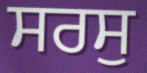
ਸਰਸੁ